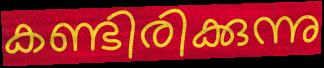
കണ്ടിരിക്കുന്നു